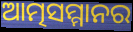
ଆତ୍ମସମ୍ମାନର